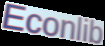
Econlib